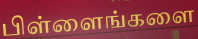
பிள்ளைங்களை